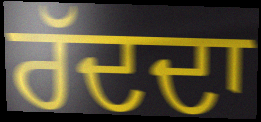
ਰੱਦਦਾ